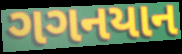
ગગનયાન